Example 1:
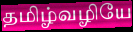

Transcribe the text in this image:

தமிழ்வழியே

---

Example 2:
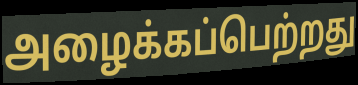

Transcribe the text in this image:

அழைக்கப்பெற்றது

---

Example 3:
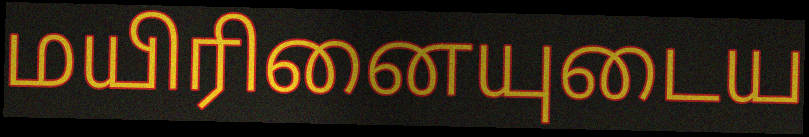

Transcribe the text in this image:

மயிரினையுடைய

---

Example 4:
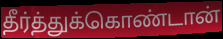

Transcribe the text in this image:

தீர்த்துக்கொண்டான்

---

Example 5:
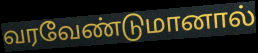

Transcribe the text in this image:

வரவேண்டுமானால்